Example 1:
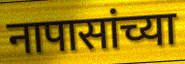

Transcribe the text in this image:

नापासांच्या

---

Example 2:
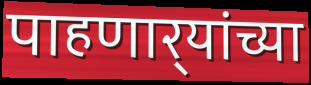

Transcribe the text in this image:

पाहणार्‍यांच्या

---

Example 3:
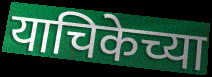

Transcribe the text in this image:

याचिकेच्या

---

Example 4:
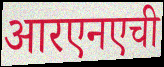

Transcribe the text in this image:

आरएनएची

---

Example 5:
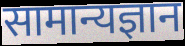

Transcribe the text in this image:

सामान्यज्ञान